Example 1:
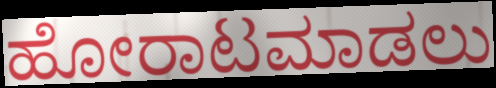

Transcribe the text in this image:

ಹೋರಾಟಮಾಡಲು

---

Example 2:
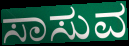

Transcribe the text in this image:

ಸಾಸುವ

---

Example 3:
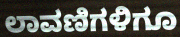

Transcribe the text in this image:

ಲಾವಣಿಗಳಿಗೂ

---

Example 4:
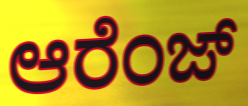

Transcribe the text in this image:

ಆರೆಂಜ್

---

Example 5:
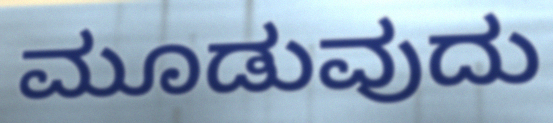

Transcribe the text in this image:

ಮೂಡುವುದು